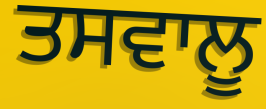
ਤਸਵਾਲੂ